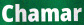
Chamar